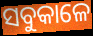
ସବୁକାଳେ